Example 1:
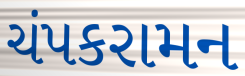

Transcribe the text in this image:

ચંપકરામન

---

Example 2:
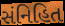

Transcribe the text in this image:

સંનિહિત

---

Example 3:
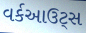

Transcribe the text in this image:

વર્કઆઉટ્સ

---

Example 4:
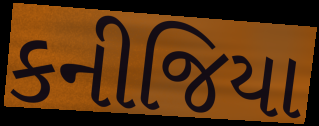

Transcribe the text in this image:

કનીજિયા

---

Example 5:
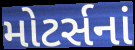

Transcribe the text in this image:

મોટર્સનાં